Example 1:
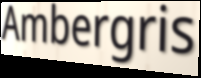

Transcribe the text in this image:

Ambergris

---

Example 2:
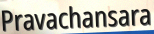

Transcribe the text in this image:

Pravachansara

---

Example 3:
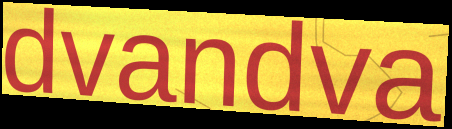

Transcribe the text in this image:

dvandva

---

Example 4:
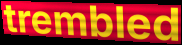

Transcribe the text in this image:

trembled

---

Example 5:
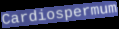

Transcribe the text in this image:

Cardiospermum